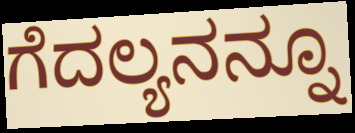
ಗೆದಲ್ಯನನ್ನೂ